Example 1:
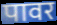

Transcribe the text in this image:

पावर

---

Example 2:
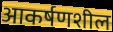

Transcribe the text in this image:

आकर्षणशील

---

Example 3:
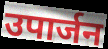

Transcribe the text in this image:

उपार्जन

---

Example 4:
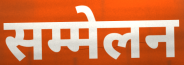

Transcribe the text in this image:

सम्मेलन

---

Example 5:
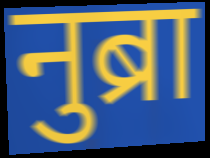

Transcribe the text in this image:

नुब्रा